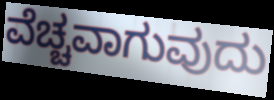
ವೆಚ್ಚವಾಗುವುದು